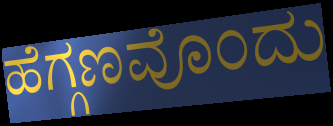
ಹೆಗ್ಗಣವೊಂದು